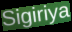
Sigiriya